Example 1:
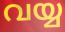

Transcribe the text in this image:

വയ്യ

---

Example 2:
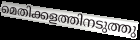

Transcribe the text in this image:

മെതിക്കളത്തിനടുത്തു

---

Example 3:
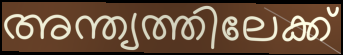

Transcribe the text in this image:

അന്ത്യത്തിലേക്ക്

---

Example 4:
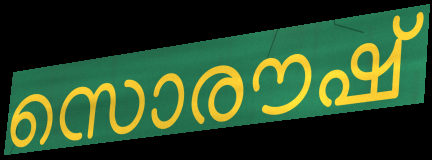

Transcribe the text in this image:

സൊരൗഷ്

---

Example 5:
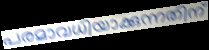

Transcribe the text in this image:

പരമാവധിയാക്കുന്നതിന്